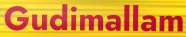
Gudimallam